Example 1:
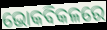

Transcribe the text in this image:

ଭୋକବିକଳରେ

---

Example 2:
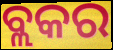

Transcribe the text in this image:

ବ୍ଲକର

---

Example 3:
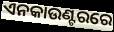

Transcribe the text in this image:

ଏନକାଉଣ୍ଟରରେ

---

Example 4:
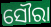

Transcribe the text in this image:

ସୌରା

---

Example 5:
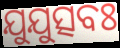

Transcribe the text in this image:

ଯୁଯୁତ୍ସବଃ